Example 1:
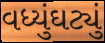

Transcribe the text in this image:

વધ્યુંઘટ્યું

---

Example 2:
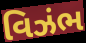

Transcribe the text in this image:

વિઝંભ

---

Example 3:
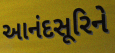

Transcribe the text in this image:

આનંદસૂરિને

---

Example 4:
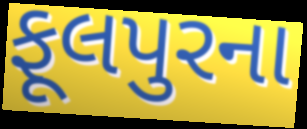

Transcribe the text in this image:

ફૂલપુરના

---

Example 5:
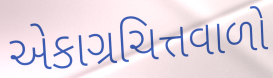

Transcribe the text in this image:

એકાગ્રચિત્તવાળો